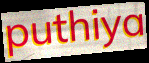
puthiya